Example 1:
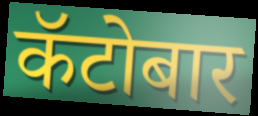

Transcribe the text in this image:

कॅटोबार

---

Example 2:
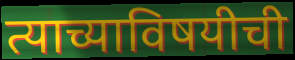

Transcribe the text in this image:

त्याच्याविषयीची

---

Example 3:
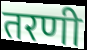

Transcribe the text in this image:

तरणी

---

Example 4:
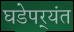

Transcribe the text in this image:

घडेपर्यंत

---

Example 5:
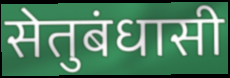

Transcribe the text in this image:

सेतुबंधासी